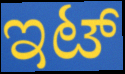
ಇಟ್